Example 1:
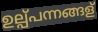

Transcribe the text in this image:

ഉല്പ്പന്നങ്ങള്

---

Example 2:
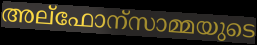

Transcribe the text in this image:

അല്ഫോന്സാമ്മയുടെ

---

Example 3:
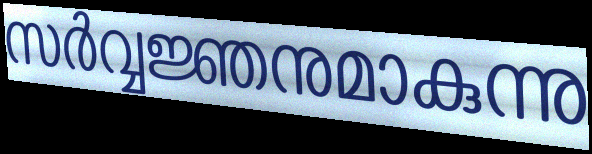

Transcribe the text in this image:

സർവ്വജ്ഞനുമാകുന്നു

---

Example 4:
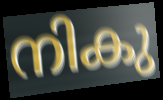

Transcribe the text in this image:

നികു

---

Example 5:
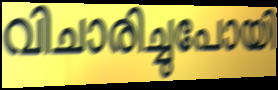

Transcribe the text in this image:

വിചാരിച്ചുപോയി